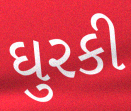
ઘુરકી